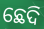
ଛେଦି